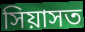
সিয়াসত